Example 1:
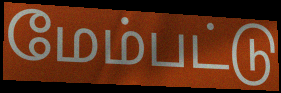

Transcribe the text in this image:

மேம்பட்டு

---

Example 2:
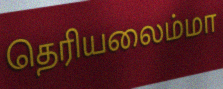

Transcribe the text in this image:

தெரியலைம்மா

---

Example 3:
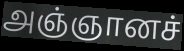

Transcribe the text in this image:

அஞ்ஞானச்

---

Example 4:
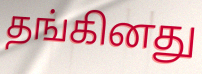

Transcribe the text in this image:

தங்கினது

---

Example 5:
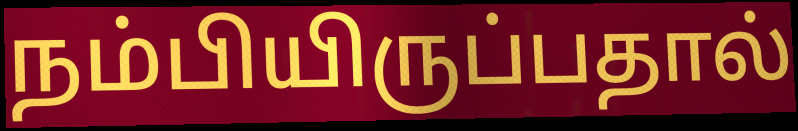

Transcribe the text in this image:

நம்பியிருப்பதால்